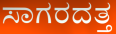
ಸಾಗರದತ್ತ